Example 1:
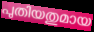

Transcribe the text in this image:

പുതിയതുമായ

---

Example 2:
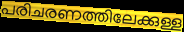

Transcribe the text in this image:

പരിചരണത്തിലേക്കുള്ള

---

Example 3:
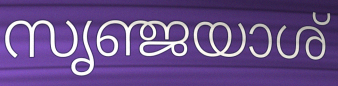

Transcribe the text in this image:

സൃഞ്ജയാശ്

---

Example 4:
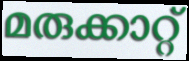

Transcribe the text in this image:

മരുക്കാറ്റ്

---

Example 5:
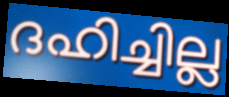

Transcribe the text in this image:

ദഹിച്ചില്ല